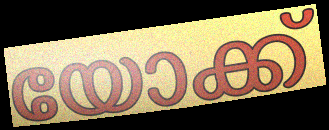
യോക്ക്